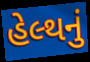
હેલ્થનું